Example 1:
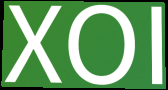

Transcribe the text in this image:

XOI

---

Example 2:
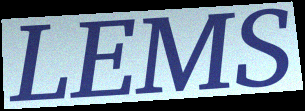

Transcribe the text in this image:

LEMS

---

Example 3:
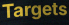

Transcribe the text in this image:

Targets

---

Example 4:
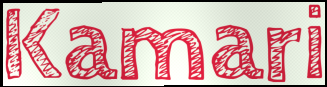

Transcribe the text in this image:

Kamari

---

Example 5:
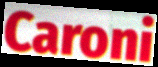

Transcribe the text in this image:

Caroni